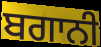
ਬਗਾਨੀ